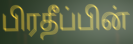
பிரதீப்பின்